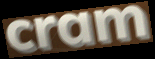
cram